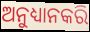
ଅନୁଧ୍ୟାନକରି